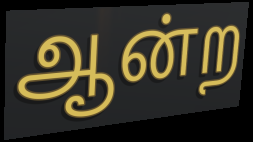
ஆன்ற